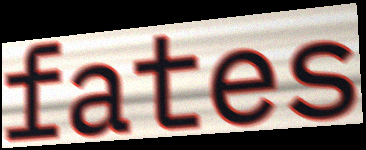
fates